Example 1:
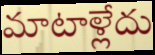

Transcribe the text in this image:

మాటాళ్లేదు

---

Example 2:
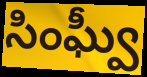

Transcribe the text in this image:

సింఘ్వీ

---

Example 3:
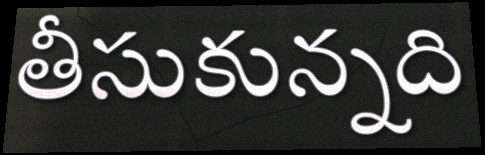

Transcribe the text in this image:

తీసుకున్నది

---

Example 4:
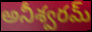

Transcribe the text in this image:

అనీశ్వరమ్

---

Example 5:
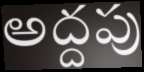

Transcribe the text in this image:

అద్దపు